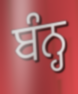
ਬੰਨ੍ਹ